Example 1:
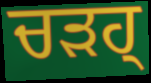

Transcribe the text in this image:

ਚੜਹ੍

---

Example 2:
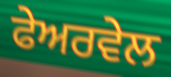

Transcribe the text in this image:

ਫੇਅਰਵੇਲ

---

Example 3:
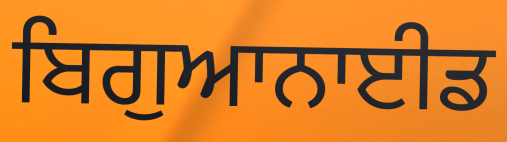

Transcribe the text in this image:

ਬਿਗੁਆਨਾਈਡ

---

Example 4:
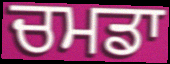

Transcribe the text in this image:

ਚਮਡਾ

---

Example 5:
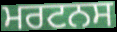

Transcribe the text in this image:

ਮਰਟਨਸ